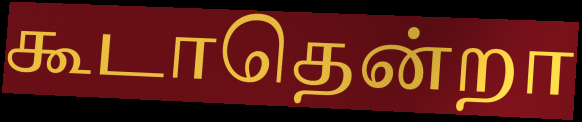
கூடாதென்றா